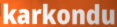
karkondu